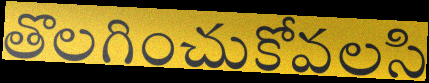
తొలగించుకోవలసి